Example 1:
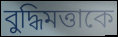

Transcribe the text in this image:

বুদ্ধিমত্তাকে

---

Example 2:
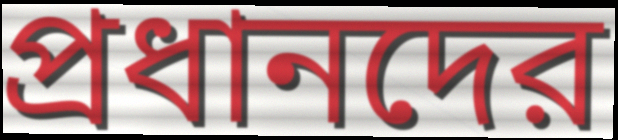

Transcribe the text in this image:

প্রধানদের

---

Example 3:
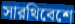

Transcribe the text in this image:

সারথিবেশে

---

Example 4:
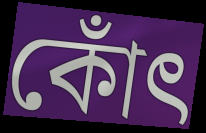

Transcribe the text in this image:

কোঁৎ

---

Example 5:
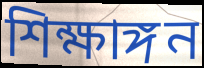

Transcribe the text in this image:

শিক্ষাঙ্গন